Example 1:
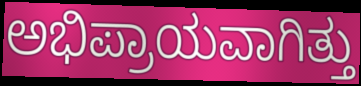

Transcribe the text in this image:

ಅಭಿಪ್ರಾಯವಾಗಿತ್ತು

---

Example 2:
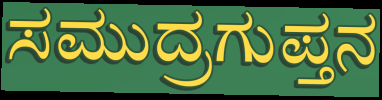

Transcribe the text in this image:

ಸಮುದ್ರಗುಪ್ತನ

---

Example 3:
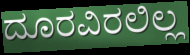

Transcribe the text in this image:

ದೂರವಿರಲಿಲ್ಲ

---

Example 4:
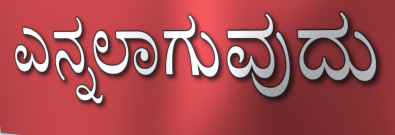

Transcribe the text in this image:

ಎನ್ನಲಾಗುವುದು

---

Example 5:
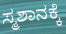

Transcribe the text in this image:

ಸ್ಮಶಾನಕ್ಕೆ